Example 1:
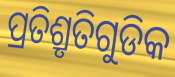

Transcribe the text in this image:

ପ୍ରତିଶ୍ରୃତିଗୁଡିକ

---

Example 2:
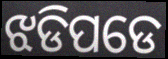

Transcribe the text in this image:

ଝଡିପଡେ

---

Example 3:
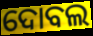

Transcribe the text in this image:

ଦୋବଲ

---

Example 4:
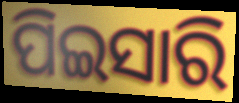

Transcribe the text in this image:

ପିଇସାରି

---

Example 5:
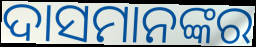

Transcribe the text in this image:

ଦାସମାନଙ୍କର